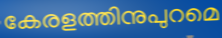
കേരളത്തിനുപുറമെ